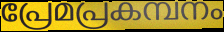
പ്രേമപ്രകമ്പനം